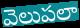
వెలుపలా